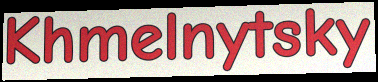
Khmelnytsky